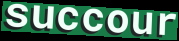
succour